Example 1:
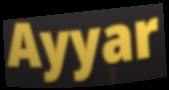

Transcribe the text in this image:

Ayyar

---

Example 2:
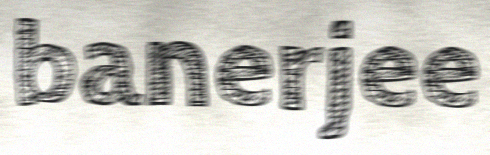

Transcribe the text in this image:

banerjee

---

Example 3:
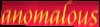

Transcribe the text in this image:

anomalous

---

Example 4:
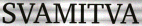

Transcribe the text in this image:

SVAMITVA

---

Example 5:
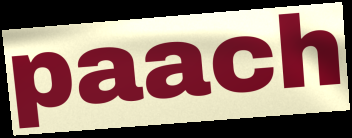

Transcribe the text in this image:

paach